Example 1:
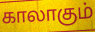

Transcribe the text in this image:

காலாகும்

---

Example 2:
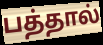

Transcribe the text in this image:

பத்தால்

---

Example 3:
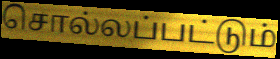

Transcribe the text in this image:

சொல்லப்பட்டும்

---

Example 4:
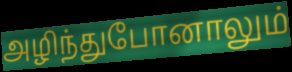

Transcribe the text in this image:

அழிந்துபோனாலும்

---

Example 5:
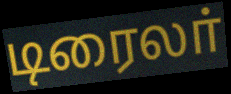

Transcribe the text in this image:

டிரைலர்